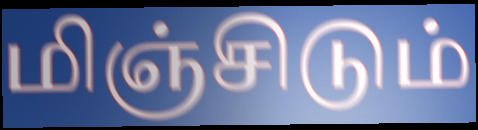
மிஞ்சிடும்